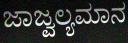
ಜಾಜ್ವಲ್ಯಮಾನ